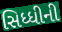
સિધ્ધીની